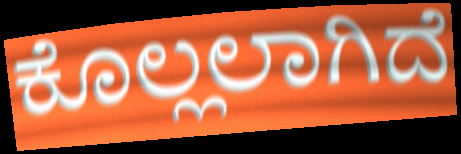
ಕೊಲ್ಲಲಾಗಿದೆ